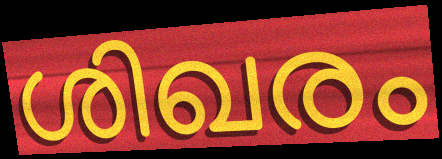
ശിഖരം